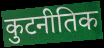
कुटनीतिक